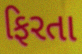
ફિરતા